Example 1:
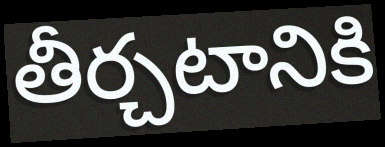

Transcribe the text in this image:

తీర్చటానికి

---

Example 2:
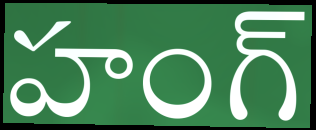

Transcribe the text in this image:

హంగ్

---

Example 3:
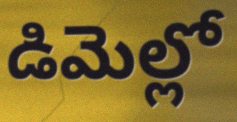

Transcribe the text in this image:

డిమెల్లో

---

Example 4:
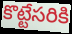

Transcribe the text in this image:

కొట్టేసరికి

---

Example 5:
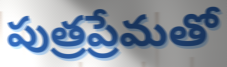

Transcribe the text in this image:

పుత్రప్రేమతో